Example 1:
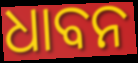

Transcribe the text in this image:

ଧାବନ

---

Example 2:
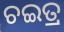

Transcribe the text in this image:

ଚଇତ୍ର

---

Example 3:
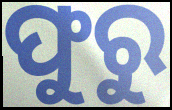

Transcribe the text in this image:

ଫୁରୁ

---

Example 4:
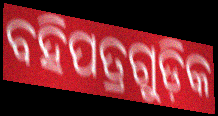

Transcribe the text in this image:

ବହିପତ୍ରଗୁଡ଼ିକ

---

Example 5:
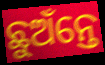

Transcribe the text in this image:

ଛୁଅଁନ୍ତେ